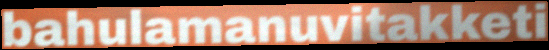
bahulamanuvitakketi